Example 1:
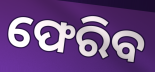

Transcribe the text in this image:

ଫେରିବ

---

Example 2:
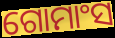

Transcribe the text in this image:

ଗୋମାଂସ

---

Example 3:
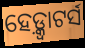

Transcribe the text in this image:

ହେଡ଼୍କ୍ୱାଟର୍ସ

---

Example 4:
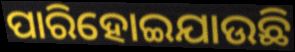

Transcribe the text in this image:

ପାରିହୋଇଯାଉଛି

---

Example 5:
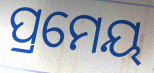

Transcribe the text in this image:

ପ୍ରମେୟ